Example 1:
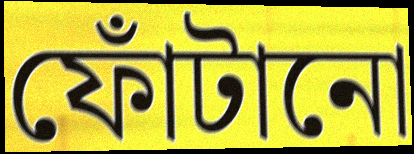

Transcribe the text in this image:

ফোঁটানো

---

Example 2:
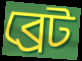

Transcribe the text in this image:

ব্রেট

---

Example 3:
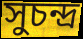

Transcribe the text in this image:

সুচন্দ্র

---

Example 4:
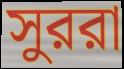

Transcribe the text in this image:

সুররা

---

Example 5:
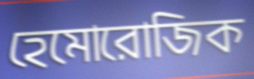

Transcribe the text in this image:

হেমোরোজিক